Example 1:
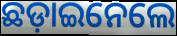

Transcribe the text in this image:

ଛଡ଼ାଇନେଲେ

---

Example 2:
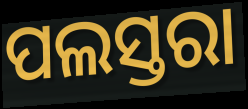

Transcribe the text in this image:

ପଲସ୍ତରା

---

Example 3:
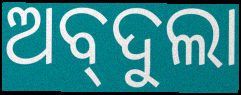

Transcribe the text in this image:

ଅବ୍‌ଦୁଲା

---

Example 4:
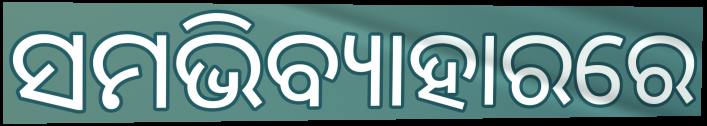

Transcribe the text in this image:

ସମଭିବ୍ୟାହାରରେ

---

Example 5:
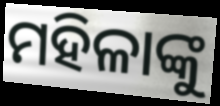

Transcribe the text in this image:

ମହିଳାଙ୍କୁ